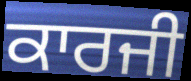
ਕਾਰਜੀ